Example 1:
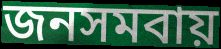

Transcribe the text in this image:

জনসমবায়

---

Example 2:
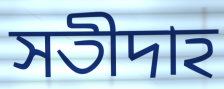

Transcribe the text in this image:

সতীদাহ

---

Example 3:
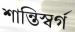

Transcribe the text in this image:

শান্তিস্বর্গ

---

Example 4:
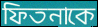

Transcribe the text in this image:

ফিতনাকে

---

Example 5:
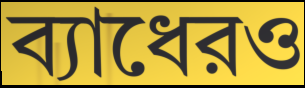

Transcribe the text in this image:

ব্যাধেরও